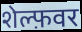
शेल्फ़वर